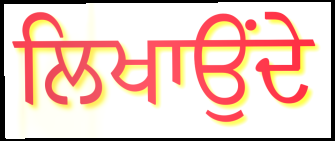
ਲਿਖਾਉਂਦੇ